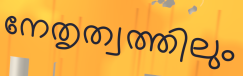
നേതൃത്വത്തിലും